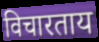
विचारताय